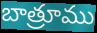
బాత్రూము